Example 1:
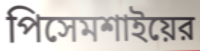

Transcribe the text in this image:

পিসেমশাইয়ের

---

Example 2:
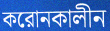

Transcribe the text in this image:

করোনকালীন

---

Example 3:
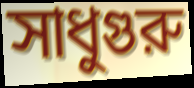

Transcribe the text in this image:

সাধুগুরু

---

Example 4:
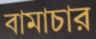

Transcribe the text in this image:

বামাচার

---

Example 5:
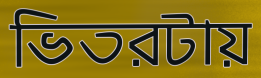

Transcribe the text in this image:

ভিতরটায়